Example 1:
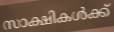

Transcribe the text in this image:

സാക്ഷികൾക്ക്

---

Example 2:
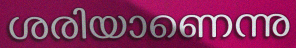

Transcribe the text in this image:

ശരിയാണെന്നു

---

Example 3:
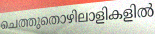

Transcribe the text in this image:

ചെത്തുതൊഴിലാളികളിൽ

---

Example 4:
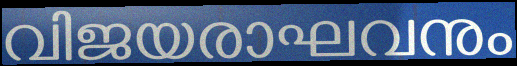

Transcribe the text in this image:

വിജയരാഘവനും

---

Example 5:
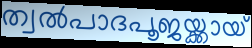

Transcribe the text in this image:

ത്വൽപാദപൂജയ്ക്കായ്